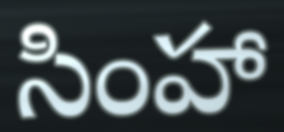
సింహా